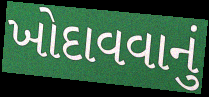
ખોદાવવાનું